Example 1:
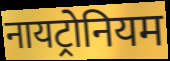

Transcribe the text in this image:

नायट्रोनियम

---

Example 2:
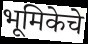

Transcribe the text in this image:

भूमिकेचे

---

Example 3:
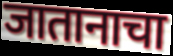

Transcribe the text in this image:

जातानाचा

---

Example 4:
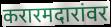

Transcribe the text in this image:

करारमदारांवर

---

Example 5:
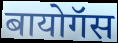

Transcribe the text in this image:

बायोगॅस